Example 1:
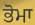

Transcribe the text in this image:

ਭੋਮਾ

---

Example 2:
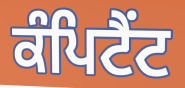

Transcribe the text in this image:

ਕੰਪਿਟੈਂਟ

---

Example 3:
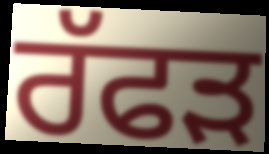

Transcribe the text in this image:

ਰੱਫੜ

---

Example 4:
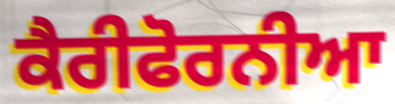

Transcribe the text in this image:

ਕੈਰੀਫੋਰਨੀਆ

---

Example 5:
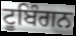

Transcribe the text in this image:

ਟੂਬਿੰਗਨ